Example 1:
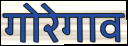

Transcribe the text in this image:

गोरेगाव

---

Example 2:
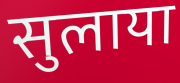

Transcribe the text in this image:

सुलाया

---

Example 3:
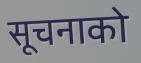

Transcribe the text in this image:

सूचनाको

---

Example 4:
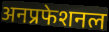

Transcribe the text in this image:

अनप्रफेशनल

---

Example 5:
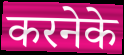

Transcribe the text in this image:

करनेके